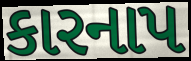
કારનાપ